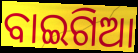
ବାଇଗିଆ